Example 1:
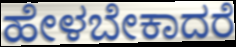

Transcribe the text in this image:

ಹೇಳಬೇಕಾದರೆ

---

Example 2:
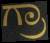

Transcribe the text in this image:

ಗ್ರಾ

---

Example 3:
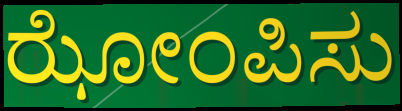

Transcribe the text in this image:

ಝೋಂಪಿಸು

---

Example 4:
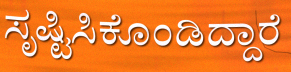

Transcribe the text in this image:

ಸೃಷ್ಟಿಸಿಕೊಂಡಿದ್ದಾರೆ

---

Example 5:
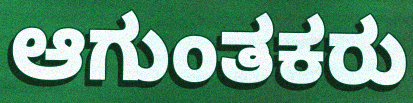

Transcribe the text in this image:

ಆಗುಂತಕರು